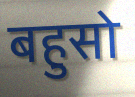
बहुसो